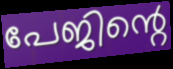
പേജിന്റെ